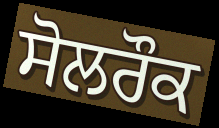
ਸੋਲਰੌਕ